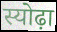
स्योढ़ा